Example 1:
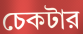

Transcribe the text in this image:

চেকটার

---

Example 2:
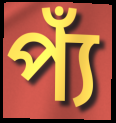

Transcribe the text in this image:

প্যঁ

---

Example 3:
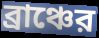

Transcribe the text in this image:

ব্রাঞ্চের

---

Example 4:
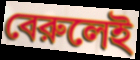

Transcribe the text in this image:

বেরুলেই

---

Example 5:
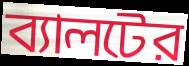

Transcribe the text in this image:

ব্যালটের